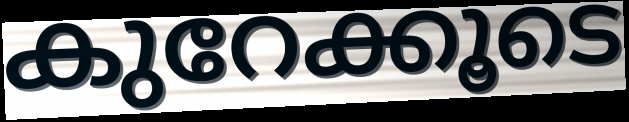
കുറേക്കൂടെ